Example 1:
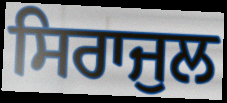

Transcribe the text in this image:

ਸਿਰਾਜੁਲ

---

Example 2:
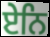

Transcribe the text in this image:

ਏਨਿ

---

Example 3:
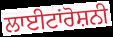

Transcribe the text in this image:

ਲਾਈਟਾਂਰੋਸ਼ਨੀ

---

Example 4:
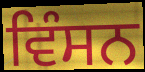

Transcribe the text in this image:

ਵਿੰਸਨ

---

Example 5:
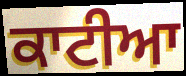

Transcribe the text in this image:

ਕਾਟੀਆ